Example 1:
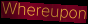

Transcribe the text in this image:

Whereupon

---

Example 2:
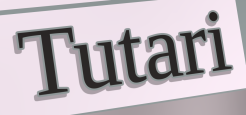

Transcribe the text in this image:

Tutari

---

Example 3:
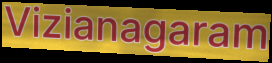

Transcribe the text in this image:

Vizianagaram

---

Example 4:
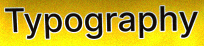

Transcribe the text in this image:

Typography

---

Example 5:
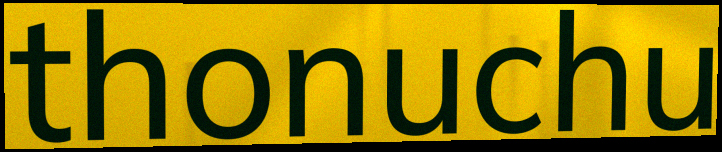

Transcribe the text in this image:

thonuchu